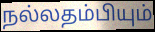
நல்லதம்பியும்